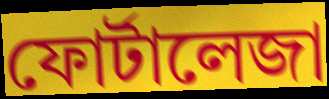
ফোর্টালেজা